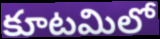
కూటమిలో